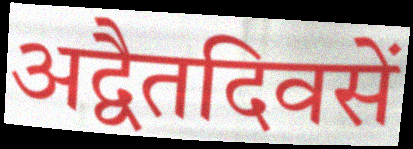
अद्वैतदिवसें